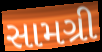
સામગ્રી